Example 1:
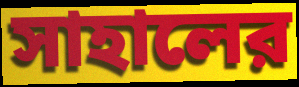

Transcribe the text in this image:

সাহালের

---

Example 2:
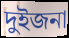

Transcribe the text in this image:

দুইজনা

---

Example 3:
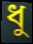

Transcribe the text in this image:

ধু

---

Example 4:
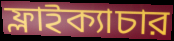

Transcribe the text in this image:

ফ্লাইক্যাচার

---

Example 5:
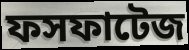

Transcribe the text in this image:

ফসফাটেজ